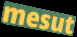
mesut